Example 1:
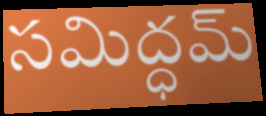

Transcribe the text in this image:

సమిద్ధమ్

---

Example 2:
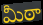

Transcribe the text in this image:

మీఠా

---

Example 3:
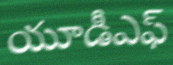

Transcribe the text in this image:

యూడీఎఫ్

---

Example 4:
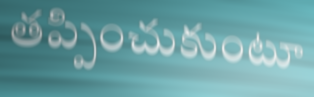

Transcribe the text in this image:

తప్పించుకుంటూ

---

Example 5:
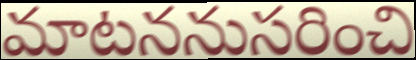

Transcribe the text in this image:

మాటననుసరించి